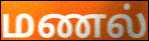
மணல்